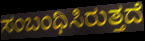
ಸಂಬಂಧಿಸಿರುತ್ತದೆ